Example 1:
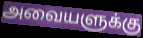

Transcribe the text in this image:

அவையளுக்கு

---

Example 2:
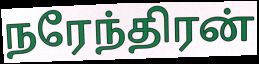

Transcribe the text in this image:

நரேந்திரன்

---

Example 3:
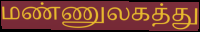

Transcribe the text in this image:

மண்ணுலகத்து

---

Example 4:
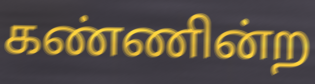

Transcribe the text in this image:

கண்ணின்ற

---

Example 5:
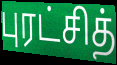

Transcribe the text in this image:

புரட்சித்